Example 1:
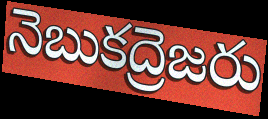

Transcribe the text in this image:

నెబుకద్రెజరు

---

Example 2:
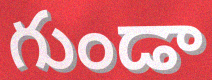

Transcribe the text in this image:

గుండా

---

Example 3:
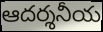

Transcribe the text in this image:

ఆదర్శనీయ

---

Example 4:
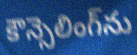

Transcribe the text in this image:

కౌన్సెలింగ్‌ను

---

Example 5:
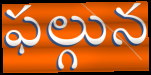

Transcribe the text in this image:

ఫల్గున